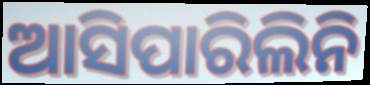
ଆସିପାରିଲିନି